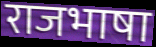
राजभाषा